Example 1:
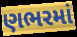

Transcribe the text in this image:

ણભરમાં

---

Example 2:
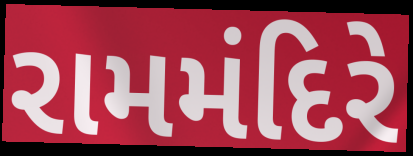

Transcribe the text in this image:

રામમંદિરે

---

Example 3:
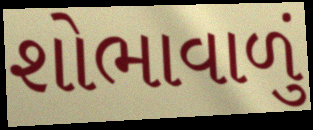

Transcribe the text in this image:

શોભાવાળું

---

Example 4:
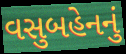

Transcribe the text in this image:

વસુબહેનનું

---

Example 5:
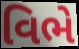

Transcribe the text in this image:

વિભે